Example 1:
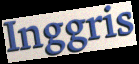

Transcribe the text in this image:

Inggris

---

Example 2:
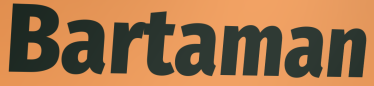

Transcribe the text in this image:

Bartaman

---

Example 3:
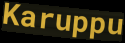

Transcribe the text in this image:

Karuppu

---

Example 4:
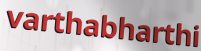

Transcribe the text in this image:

varthabharthi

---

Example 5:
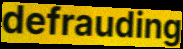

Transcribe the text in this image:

defrauding